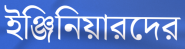
ইঞ্জিনিয়ারদের